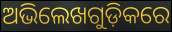
ଅଭିଲେଖଗୁଡ଼ିକରେ